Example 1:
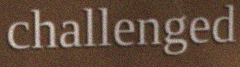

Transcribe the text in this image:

challenged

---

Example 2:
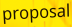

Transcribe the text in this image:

proposal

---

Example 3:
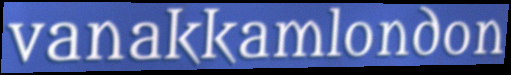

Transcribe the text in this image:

vanakkamlondon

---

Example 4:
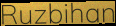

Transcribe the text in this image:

Ruzbihan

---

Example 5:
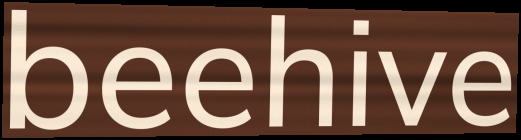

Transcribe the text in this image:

beehive